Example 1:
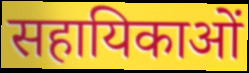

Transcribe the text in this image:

सहायिकाओं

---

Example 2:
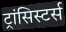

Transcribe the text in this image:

ट्रांसिस्टर्स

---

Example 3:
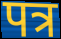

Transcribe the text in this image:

पत्र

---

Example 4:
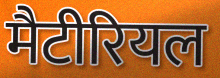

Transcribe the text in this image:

मैटीरियल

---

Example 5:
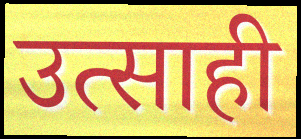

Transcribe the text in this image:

उत्साही